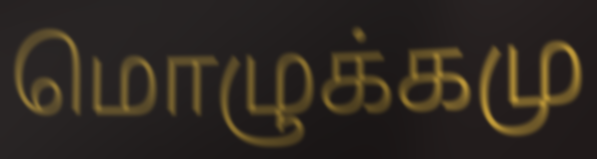
மொழுக்கமு